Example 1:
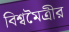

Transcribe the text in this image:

বিশ্বমৈত্রীর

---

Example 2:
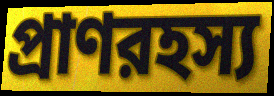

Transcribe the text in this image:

প্রাণরহস্য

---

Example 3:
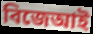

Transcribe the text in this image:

বিজেআই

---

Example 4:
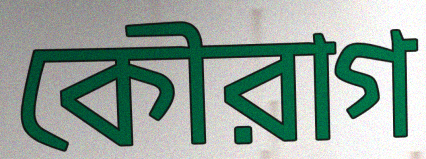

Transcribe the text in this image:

কৌরাগ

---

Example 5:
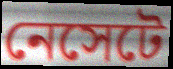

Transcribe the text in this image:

নেসেটে